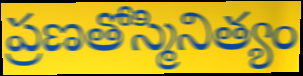
ప్రణతోస్మినిత్యం